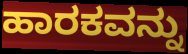
ಹಾರಕವನ್ನು